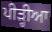
ਪੀੜ੍ਹੀਆ